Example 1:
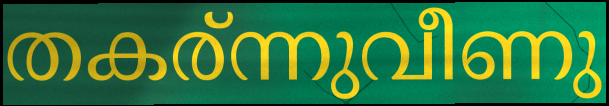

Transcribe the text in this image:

തകര്ന്നുവീണു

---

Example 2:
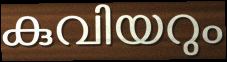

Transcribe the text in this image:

കുവിയറും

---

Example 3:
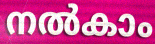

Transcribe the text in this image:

നൽകാം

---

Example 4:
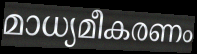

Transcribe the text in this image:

മാധ്യമീകരണം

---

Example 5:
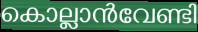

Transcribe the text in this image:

കൊല്ലാൻവേണ്ടി